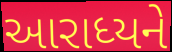
આરાધ્યને